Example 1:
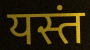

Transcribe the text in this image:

यस्तं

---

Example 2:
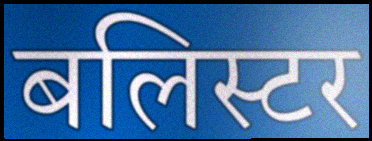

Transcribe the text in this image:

बलिस्टर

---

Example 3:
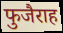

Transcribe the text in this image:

फुजैराह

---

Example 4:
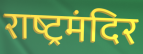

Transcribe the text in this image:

राष्ट्रमंदिर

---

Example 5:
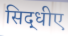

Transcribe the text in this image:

सिद्धीए